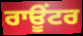
ਰਾਊਂਟਰ